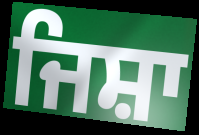
ਜਿਸ਼ਾ